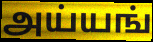
அய்யங்